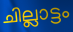
ചില്ലാട്ടം